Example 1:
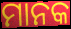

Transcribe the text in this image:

ମାନକ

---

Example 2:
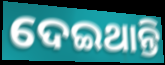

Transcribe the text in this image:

ଦେଇଥାନ୍ତି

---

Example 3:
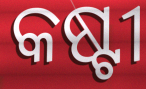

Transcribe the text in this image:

କଷ୍ଟୀ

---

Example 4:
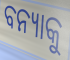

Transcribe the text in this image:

ବନ୍ୟାକୁ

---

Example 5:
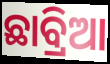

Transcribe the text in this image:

ଛାବ୍ରିଆ